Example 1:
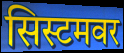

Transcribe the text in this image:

सिस्टमवर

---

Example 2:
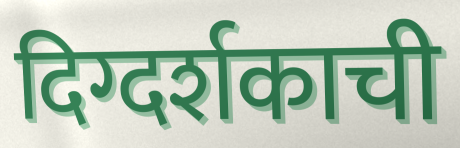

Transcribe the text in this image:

दिग्दर्शकाची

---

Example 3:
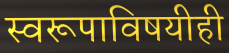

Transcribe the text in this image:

स्वरूपाविषयीही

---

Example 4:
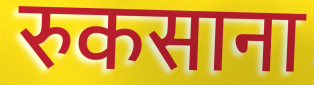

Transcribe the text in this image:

रुकसाना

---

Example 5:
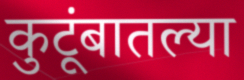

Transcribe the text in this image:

कुटूंबातल्या